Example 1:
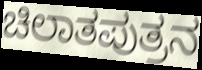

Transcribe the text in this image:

ಚಿಲಾತಪುತ್ರನ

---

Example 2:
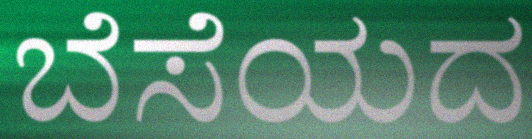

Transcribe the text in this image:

ಬೆಸೆಯದ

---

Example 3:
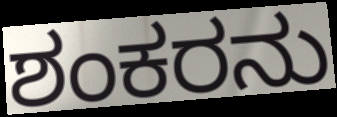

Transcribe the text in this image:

ಶಂಕರನು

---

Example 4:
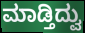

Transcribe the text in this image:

ಮಾಡ್ತಿದ್ವು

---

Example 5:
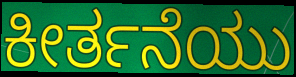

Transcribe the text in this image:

ಕೀರ್ತನೆಯು